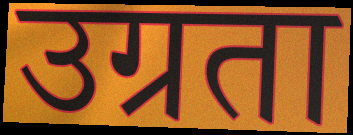
उग्रता